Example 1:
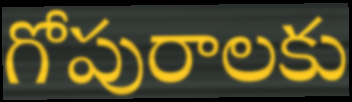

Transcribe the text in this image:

గోపురాలకు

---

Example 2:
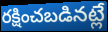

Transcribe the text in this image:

రక్షించబడినట్లే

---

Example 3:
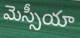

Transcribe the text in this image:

మెస్సీయా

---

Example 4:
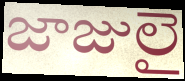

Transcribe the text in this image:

జాజులై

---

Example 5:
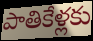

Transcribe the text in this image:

పాతికేళ్లకు